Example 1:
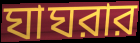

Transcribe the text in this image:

ঘাঘরার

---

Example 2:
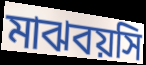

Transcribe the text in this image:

মাঝবয়সি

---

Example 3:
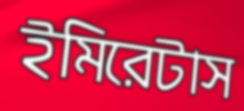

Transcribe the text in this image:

ইমিরেটাস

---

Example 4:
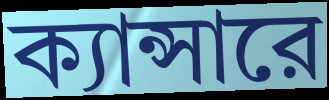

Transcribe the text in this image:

ক্যান্সারে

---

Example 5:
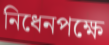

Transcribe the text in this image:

নিধেনপক্ষে